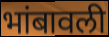
भांबावली